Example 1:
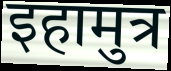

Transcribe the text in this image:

इहामुत्र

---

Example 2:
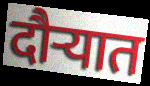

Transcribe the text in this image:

दौर्‍यात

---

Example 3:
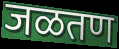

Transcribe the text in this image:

जळतण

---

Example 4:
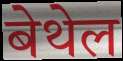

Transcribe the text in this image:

बेथेल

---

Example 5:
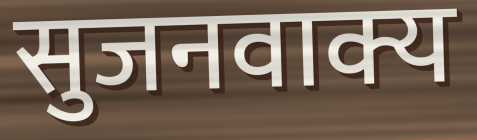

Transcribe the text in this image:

सुजनवाक्य